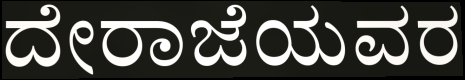
ದೇರಾಜೆಯವರ